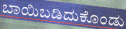
ಬಾಯಿಬಡಿದುಕೊಂಡು